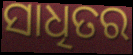
ସାଧିତର